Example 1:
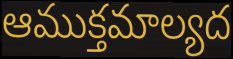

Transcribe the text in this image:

ఆముక్తమాల్యద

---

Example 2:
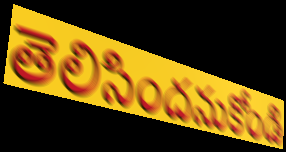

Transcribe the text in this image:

తెలిసిందనుకోండి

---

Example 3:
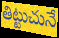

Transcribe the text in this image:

తిట్టుచునే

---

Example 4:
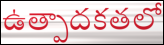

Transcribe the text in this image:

ఉత్పాదకతలో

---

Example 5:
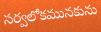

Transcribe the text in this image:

సర్వలోకమునకును